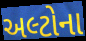
અલ્ટોના